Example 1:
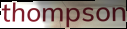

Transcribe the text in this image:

thompson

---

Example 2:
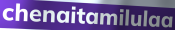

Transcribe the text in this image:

chenaitamilulaa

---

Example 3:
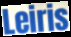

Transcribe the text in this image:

Leiris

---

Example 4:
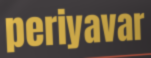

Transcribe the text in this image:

periyavar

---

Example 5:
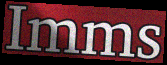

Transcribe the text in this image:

Imms